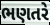
ભણતરે